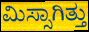
ಮಿಸ್ಸಾಗಿತ್ತು